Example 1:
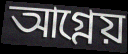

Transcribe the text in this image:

আগ্নেয়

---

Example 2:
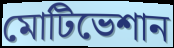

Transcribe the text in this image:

মোটিভেশান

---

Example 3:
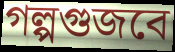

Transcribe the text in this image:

গল্পগুজবে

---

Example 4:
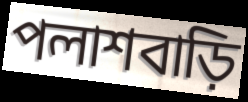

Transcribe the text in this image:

পলাশবাড়ি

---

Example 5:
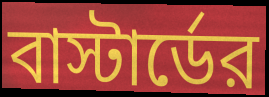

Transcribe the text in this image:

বাস্টার্ডের